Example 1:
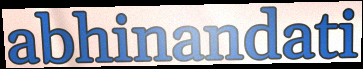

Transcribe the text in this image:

abhinandati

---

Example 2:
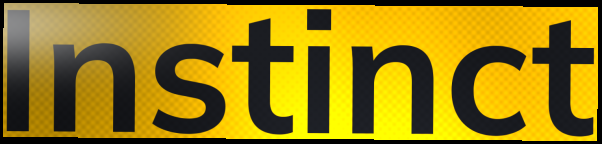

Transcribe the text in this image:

Instinct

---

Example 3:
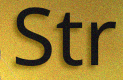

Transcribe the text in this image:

Str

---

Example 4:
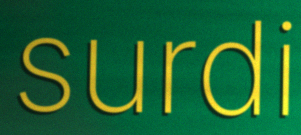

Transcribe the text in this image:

surdi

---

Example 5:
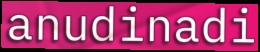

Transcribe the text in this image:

anudinadi